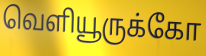
வெளியூருக்கோ